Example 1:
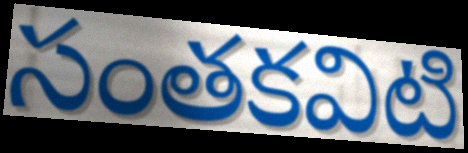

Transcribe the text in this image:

సంతకవిటి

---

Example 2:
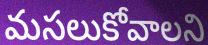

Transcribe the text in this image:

మసలుకోవాలని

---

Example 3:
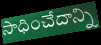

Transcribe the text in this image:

సాధించేదాన్ని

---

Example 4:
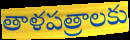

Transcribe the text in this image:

తాళపత్రాలకు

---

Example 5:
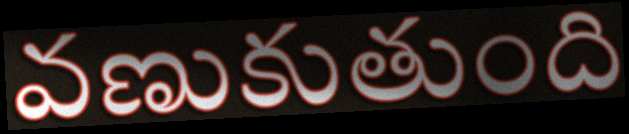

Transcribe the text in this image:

వణుకుతుంది